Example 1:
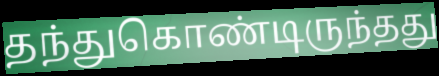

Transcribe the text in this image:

தந்துகொண்டிருந்தது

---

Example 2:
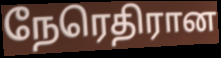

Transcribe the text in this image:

நேரெதிரான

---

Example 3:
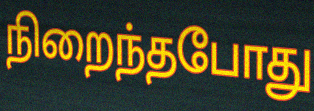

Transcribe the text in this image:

நிறைந்தபோது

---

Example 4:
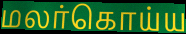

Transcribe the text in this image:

மலர்கொய்ய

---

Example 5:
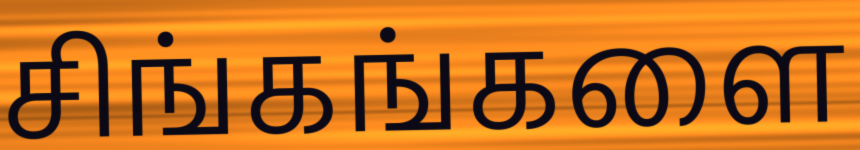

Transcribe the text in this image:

சிங்கங்களை